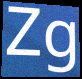
Zg